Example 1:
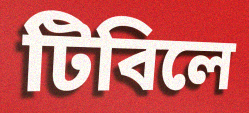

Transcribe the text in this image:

টিবিলে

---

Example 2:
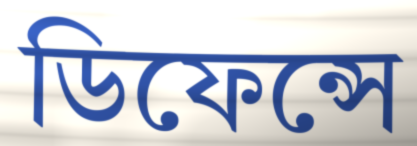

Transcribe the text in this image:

ডিফেন্সে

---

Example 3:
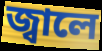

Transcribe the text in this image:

জ্বালে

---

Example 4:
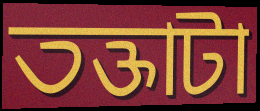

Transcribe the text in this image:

তক্তাটা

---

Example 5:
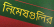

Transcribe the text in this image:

নিমেষগুলির